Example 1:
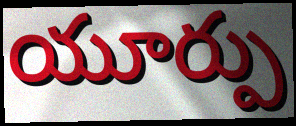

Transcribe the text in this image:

యూర్పు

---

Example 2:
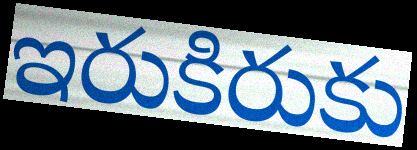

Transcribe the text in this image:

ఇరుకిరుకు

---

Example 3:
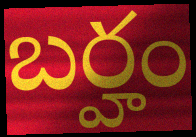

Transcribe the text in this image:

బర్హం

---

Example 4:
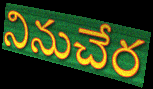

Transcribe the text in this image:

నినుచేర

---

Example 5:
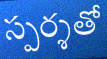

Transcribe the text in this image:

స్పర్శతో